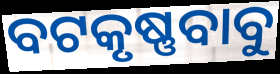
ବଟକୃଷ୍ଣବାବୁ